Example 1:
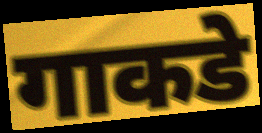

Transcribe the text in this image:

गाकडे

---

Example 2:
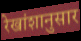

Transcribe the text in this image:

रेखांशानुसार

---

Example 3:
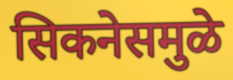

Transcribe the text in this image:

सिकनेसमुळे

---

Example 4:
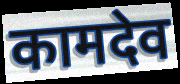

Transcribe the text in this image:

कामदेव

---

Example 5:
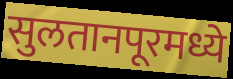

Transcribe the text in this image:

सुलतानपूरमध्ये